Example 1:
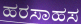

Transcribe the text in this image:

ಹರಸಾಹಸ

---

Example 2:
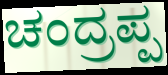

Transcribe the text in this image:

ಚಂದ್ರಪ್ಪ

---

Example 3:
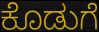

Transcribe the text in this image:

ಕೊಡುಗೆ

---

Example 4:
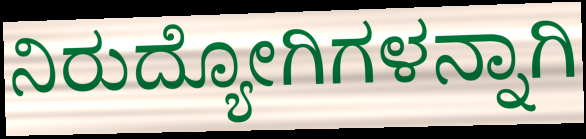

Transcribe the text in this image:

ನಿರುದ್ಯೋಗಿಗಳನ್ನಾಗಿ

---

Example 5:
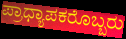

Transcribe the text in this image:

ಪ್ರಾಧ್ಯಾಪಕರೊಬ್ಬರು